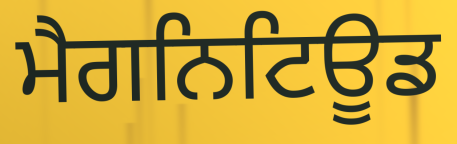
ਮੈਗਨਿਟਿਊਡ